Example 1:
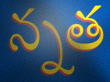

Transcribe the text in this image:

న్నత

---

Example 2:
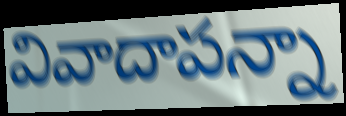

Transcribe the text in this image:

వివాదాపన్నా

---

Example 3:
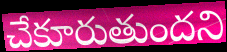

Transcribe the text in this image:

చేకూరుతుందని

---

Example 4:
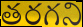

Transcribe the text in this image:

తరగని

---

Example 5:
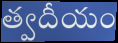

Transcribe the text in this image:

త్వదీయం